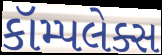
કૉમ્પલેક્સ